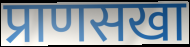
प्राणसखा